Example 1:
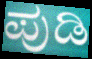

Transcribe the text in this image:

ಪುಡಿ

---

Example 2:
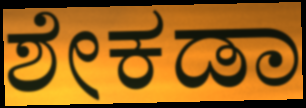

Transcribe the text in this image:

ಶೇಕಡಾ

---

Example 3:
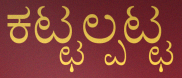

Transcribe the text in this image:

ಕಟ್ಟಲ್ಪಟ್ಟ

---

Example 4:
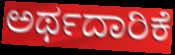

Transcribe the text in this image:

ಅರ್ಥದಾರಿಕೆ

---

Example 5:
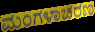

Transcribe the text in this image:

ಮಂಗಳಾಚರಣ